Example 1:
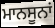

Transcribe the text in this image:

ਮਾਨਸੂਨਾਂ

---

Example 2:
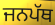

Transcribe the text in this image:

ਜਨਪੱਥ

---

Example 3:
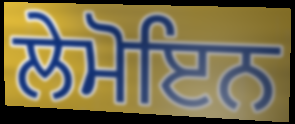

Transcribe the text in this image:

ਲੇਮੋਇਨ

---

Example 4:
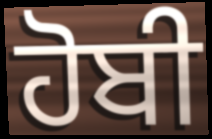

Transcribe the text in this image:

ਹੋਬੀ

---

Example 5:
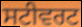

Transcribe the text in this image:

ਸਟੀਵਰਟ